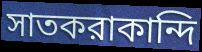
সাতকরাকান্দি